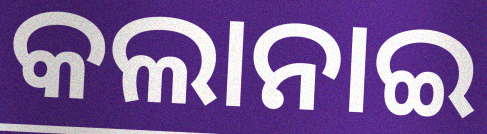
କଲାନାଇ